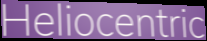
Heliocentric